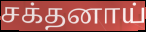
சக்தனாய்